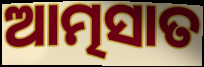
ଆତ୍ମସାତ